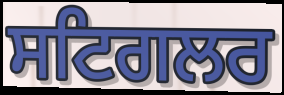
ਸਟਿਗਲਰ